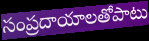
సంప్రదాయాలతోపాటు